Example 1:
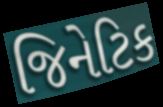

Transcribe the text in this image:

જિનેટિક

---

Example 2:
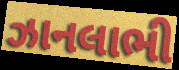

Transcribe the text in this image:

ઝાનલાભી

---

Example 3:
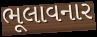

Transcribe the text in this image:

ભૂલાવનાર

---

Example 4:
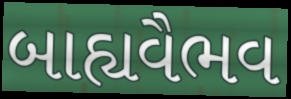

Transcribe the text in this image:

બાહ્યવૈભવ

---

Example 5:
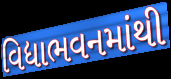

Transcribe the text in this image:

વિદ્યાભવનમાંથી